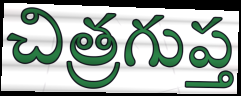
చిత్రగుప్త